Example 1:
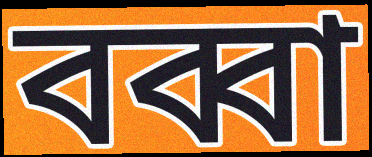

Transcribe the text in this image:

বব্বা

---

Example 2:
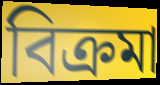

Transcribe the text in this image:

বিক্রমা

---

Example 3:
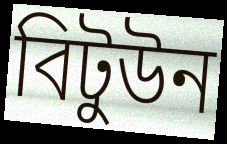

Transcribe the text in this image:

বিটুউন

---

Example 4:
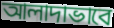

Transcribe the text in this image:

আলাদাভাবে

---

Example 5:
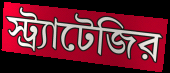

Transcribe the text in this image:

স্ট্র্যাটেজির